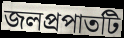
জলপ্রপাতটি